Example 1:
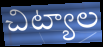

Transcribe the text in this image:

చిట్యాల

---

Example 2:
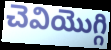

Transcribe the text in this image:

చెవియొగ్గి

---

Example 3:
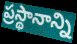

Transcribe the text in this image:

ప్రస్థానాన్ని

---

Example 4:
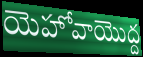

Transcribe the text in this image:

యెహోవాయొద్ద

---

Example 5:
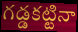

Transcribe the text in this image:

గడ్డకట్టినా